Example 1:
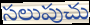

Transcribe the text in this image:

సలుపుచు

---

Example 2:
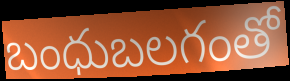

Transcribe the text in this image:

బంధుబలగంతో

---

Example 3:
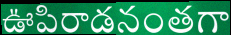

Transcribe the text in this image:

ఊపిరాడనంతగా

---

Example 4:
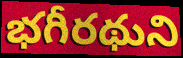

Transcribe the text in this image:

భగీరథుని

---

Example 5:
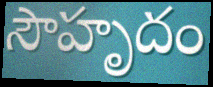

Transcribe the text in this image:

సౌహృదం